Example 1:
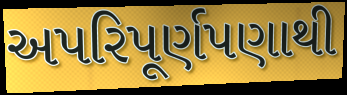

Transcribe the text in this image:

અપરિપૂર્ણપણાથી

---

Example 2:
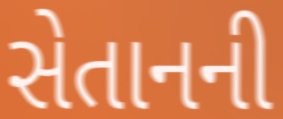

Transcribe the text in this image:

સેતાનની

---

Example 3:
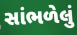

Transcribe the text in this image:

સાંભળેલું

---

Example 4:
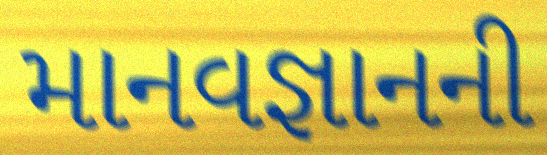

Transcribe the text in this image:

માનવજ્ઞાનની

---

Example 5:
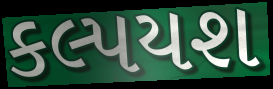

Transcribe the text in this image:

કલ્પયશ